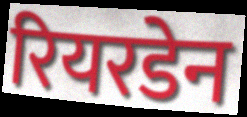
रियरडेन